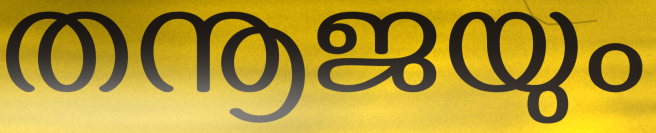
തനൂജയും